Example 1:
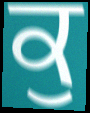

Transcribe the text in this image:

ਕੁ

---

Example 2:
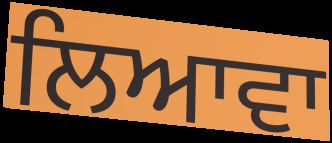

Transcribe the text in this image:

ਲਿਆਵਾ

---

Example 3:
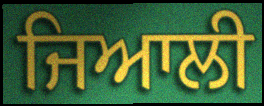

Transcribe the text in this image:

ਜਿਆਲੀ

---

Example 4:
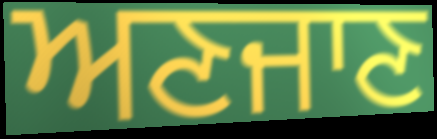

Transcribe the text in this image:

ਅਣਜਾਣ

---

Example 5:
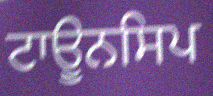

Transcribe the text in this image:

ਟਾਊਨਸਿਪ